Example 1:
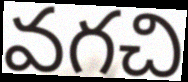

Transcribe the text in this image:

వగచి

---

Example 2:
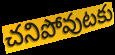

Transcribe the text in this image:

చనిపోవుటకు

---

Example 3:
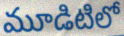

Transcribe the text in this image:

మూడిటిలో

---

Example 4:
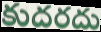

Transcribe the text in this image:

కుదరదు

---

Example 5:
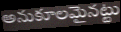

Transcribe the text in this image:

అనుకూలమైనట్టు